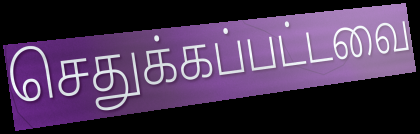
செதுக்கப்பட்டவை